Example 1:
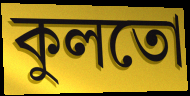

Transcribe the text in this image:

কুলতো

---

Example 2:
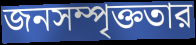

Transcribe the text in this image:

জনসম্পৃক্ততার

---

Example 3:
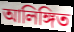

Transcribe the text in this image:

আলিঙ্গিত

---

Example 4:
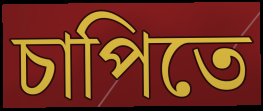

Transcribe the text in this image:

চাপিতে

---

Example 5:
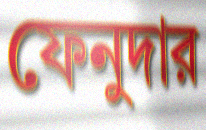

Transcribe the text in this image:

ফেনুদার